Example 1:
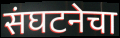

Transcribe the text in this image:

संघटनेचा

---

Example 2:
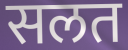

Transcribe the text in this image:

सलत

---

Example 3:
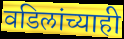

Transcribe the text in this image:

वडिलांच्याही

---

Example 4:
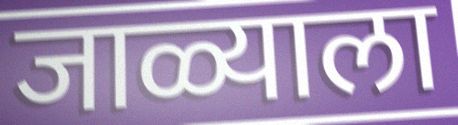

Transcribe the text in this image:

जाळ्याला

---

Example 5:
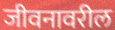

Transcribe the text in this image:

जीवनावरील